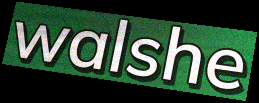
walshe